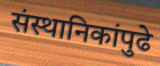
संस्थानिकांपुढे